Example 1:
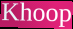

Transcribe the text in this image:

Khoop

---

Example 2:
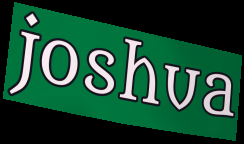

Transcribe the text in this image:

joshua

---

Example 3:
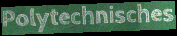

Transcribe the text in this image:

Polytechnisches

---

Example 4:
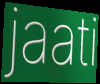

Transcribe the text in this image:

jaati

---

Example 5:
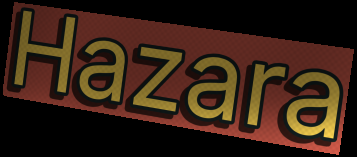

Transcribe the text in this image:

Hazara